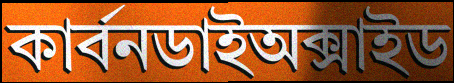
কার্বনডাইঅক্সাইড